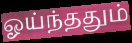
ஓய்ந்ததும்